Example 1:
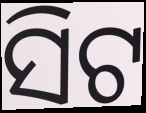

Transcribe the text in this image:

ସିଟ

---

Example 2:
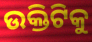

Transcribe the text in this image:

ଉକ୍ତିଟିକୁ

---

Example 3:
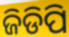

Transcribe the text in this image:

ଜିଡିପି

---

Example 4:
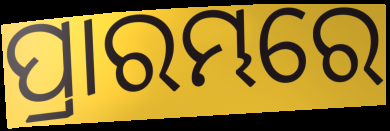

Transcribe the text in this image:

ପ୍ରାରମ୍ଭରେ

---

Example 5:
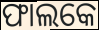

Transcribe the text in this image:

ଫାଲକେ